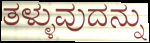
ತಳ್ಳುವುದನ್ನು